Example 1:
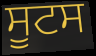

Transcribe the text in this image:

ਸੂਟਸ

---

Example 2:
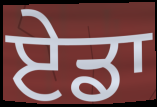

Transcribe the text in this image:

ਏਡਾ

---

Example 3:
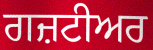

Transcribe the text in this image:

ਗਜ਼ਟੀਅਰ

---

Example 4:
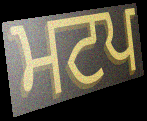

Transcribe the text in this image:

ਮਟਪ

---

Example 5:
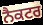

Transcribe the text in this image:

ਨੈਕਟਰ